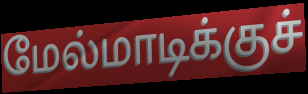
மேல்மாடிக்குச்